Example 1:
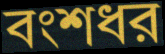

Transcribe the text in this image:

বংশধর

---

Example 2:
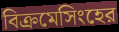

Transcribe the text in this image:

বিক্রমেসিংহের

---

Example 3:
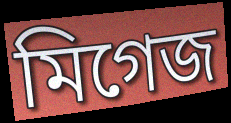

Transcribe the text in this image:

মিগেজ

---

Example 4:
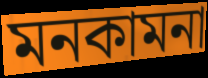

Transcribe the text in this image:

মনকামনা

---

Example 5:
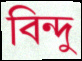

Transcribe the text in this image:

বিন্দু